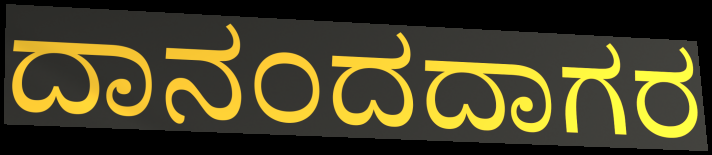
ದಾನಂದದಾಗರ